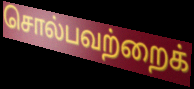
சொல்பவற்றைக்